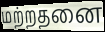
மற்றதனை